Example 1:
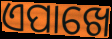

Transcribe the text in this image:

ଏପାଖେ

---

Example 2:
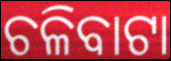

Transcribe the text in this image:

ଚଳିବାଟା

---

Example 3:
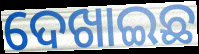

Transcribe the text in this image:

ଦେଖାଇଛ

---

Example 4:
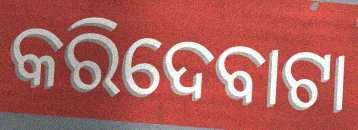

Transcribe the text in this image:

କରିଦେବାଟା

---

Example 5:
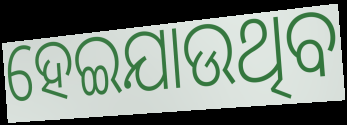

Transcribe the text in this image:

ହେଇଯାଉଥିବ